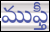
ముఫ్తీ